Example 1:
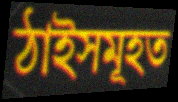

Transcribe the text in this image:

ঠাইসমূহত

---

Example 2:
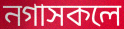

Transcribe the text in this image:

নগাসকলে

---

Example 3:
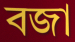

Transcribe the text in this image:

বজা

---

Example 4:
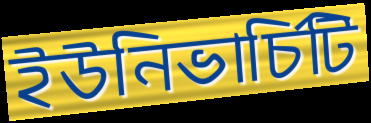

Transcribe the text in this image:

ইউনিভাৰ্চিটি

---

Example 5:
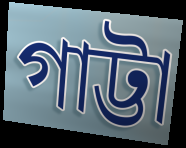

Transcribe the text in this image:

গাট্টা